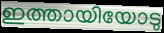
ഇത്തായിയോടു